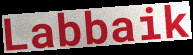
Labbaik